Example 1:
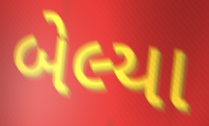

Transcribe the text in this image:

બેલ્યા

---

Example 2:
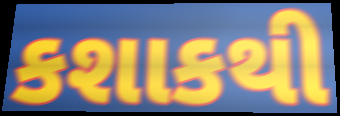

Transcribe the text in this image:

કશાકથી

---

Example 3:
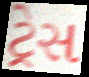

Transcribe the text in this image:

ટ્રેસ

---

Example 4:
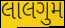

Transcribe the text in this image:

લાલગુમ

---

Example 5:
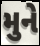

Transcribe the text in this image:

મુને